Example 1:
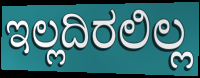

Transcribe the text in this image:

ಇಲ್ಲದಿರಲಿಲ್ಲ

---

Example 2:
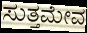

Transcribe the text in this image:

ಸುತ್ತಮೇವ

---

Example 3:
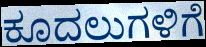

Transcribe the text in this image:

ಕೂದಲುಗಳಿಗೆ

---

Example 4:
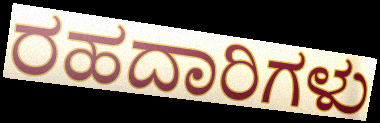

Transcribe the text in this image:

ರಹದಾರಿಗಳು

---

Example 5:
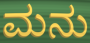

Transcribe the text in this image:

ಮನು